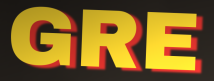
GRE